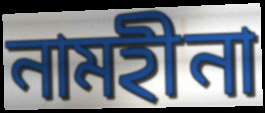
নামহীনা